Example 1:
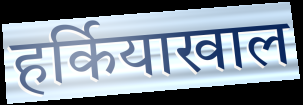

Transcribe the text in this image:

हर्कियाखाल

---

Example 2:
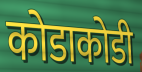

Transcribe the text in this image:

कोडाकोडी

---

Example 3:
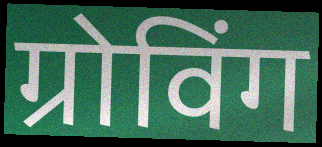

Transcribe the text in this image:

ग्रोविंग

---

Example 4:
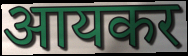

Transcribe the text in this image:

आयकर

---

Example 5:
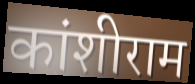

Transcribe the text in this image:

कांशीराम